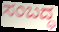
ಸಂಬದ್ಧ